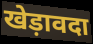
खेड़ावदा